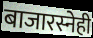
बाजारस्नेही